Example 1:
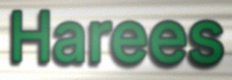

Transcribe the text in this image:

Harees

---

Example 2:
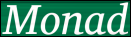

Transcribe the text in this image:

Monad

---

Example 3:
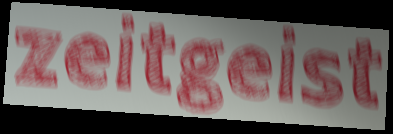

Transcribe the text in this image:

zeitgeist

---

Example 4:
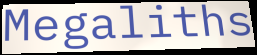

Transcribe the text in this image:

Megaliths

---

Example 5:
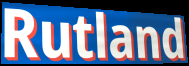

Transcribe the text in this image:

Rutland